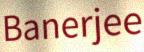
Banerjee